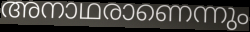
അനാഥരാണെന്നും